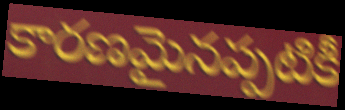
కారణమైనప్పటికీ